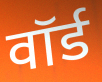
वॉर्ड